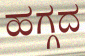
ಹಗ್ಗದ